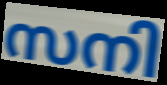
സനി